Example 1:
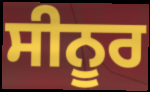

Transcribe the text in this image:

ਸੀਨੂਰ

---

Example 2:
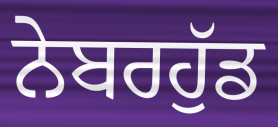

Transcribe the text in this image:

ਨੇਬਰਹੁੱਡ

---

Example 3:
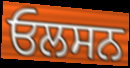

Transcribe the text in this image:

ਓਲਸਨ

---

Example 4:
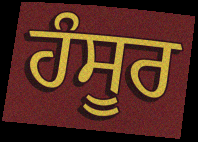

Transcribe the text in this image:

ਹੰਸੂਰ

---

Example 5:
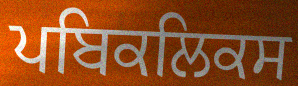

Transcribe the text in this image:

ਪਬਿਕਲਿਕਸ